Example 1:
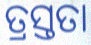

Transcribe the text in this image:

ତ୍ରସ୍ତତା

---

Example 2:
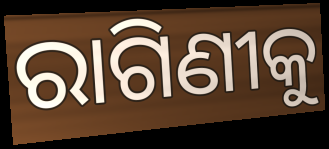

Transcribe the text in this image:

ରାଗିଣୀକୁ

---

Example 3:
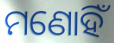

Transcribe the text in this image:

ମଣୋହିଁ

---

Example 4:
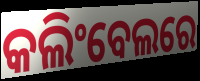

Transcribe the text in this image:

କଲିଂବେଲରେ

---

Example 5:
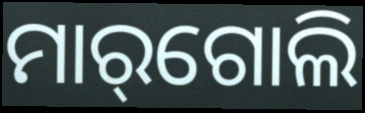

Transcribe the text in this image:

ମାର୍‌ଗୋଲି